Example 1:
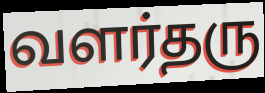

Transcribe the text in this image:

வளர்தரு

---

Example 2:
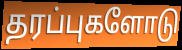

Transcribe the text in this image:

தரப்புகளோடு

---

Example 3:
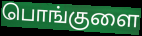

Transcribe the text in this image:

பொங்குளை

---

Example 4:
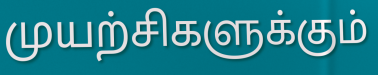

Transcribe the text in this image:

முயற்சிகளுக்கும்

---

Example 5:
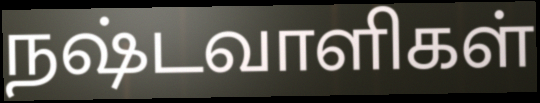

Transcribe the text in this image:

நஷ்டவாளிகள்